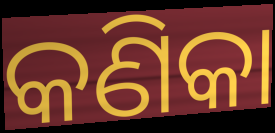
କଣିକା